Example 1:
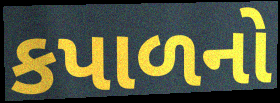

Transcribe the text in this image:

કપાળનો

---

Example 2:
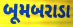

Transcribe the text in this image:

બૂમબરાડા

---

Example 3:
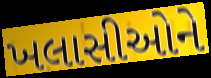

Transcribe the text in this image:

ખલાસીઓને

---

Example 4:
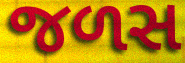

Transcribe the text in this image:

જળસ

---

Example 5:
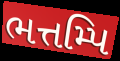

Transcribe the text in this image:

ભત્તમ્પિ